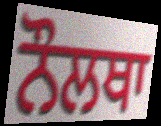
ਨੌਲਥਾ